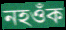
নহওঁক